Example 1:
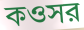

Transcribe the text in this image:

কওসর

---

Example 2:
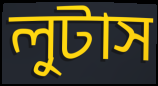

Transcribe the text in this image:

লুটাস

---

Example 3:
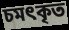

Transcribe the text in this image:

চমৎকৃত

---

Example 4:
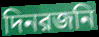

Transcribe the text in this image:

দিনরজনি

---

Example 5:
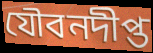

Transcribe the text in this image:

যৌবনদীপ্ত